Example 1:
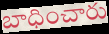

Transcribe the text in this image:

బాధించారు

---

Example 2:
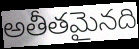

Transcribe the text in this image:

అతీతమైనది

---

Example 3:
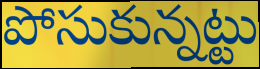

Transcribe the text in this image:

పోసుకున్నట్టు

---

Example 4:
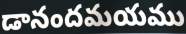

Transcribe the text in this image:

డానందమయము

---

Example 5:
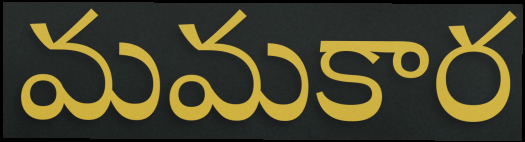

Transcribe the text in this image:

మమకార